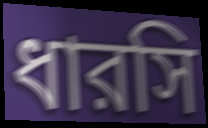
ধারসি